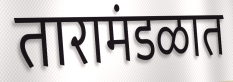
तारामंडळात